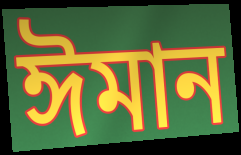
ঈমান